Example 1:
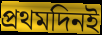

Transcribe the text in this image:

প্রথমদিনই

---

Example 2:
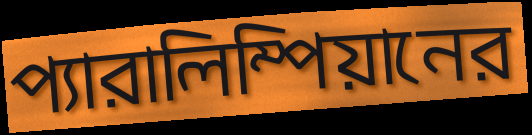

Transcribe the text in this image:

প্যারালিম্পিয়ানের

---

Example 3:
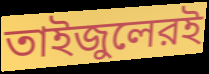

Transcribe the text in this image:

তাইজুলেরই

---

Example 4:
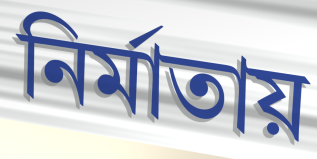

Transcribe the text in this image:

নির্মাতায়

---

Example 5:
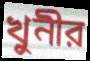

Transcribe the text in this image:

খুনীর